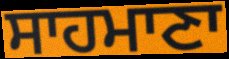
ਸਾਹਮਾਣਾ